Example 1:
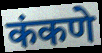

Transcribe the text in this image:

कंकणे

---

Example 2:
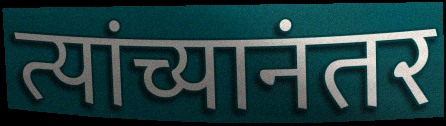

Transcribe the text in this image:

त्यांच्यानंतर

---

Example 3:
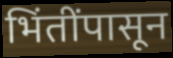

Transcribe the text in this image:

भिंतींपासून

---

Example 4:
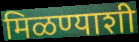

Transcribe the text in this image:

मिळण्याशी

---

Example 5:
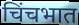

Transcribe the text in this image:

चिंचभात